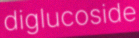
diglucoside